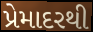
પ્રેમાદરથી